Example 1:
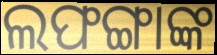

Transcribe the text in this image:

ଲଫଙ୍ଗାଙ୍କ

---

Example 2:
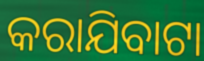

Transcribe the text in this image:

କରାଯିବାଟା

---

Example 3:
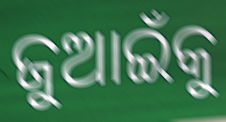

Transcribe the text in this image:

ଜୁଆଇଁକୁ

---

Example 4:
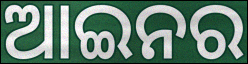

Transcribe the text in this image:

ଆଇନର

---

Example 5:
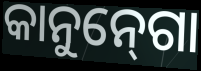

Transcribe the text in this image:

କାନୁନ୍‍ଗୋ